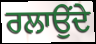
ਰਲਾਉਂਦੇ